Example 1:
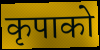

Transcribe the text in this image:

कृपाको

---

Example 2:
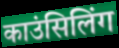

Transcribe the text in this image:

काउंसिलिंग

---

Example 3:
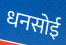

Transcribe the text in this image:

धनसोई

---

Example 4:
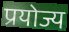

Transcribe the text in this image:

प्रयोज्य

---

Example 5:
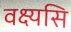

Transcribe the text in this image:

वक्ष्यसि